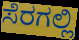
ಸೆರಗಲ್ಲಿ